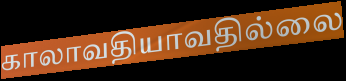
காலாவதியாவதில்லை